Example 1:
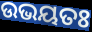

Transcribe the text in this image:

ଉଭୟତଃ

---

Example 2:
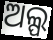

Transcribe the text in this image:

ଅଲ୍ପ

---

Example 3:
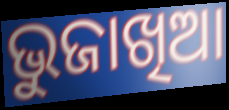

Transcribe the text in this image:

ଭୁଜାଖିଆ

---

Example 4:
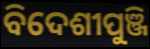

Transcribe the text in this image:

ବିଦେଶୀପୁଞ୍ଜି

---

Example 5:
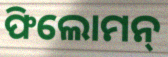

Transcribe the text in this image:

ଫିଲୋମନ୍